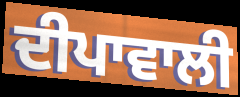
ਦੀਪਾਵਾਲੀ